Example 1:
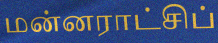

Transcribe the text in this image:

மன்னராட்சிப்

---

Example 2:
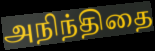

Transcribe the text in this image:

அநிந்திதை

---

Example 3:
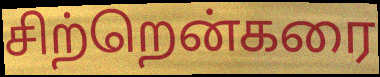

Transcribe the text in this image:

சிற்றென்கரை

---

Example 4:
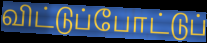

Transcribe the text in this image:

விட்டுப்போட்டுப்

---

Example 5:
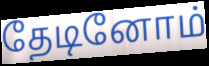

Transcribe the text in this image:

தேடினோம்